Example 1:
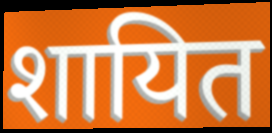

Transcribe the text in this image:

शायित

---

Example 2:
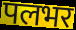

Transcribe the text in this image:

पलभर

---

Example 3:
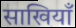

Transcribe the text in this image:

साखियाँ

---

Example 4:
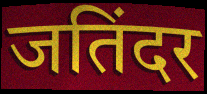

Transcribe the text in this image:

जतिंदर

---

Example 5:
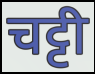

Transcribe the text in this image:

चट्टी